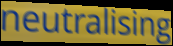
neutralising